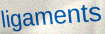
ligaments